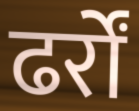
ढर्रों